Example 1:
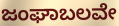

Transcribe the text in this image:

ಜಂಘಾಬಲವೇ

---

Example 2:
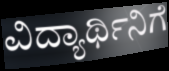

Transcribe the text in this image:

ವಿದ್ಯಾರ್ಥಿನಿಗೆ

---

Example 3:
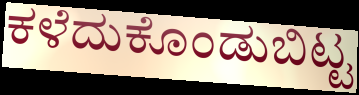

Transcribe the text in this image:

ಕಳೆದುಕೊಂಡುಬಿಟ್ಟ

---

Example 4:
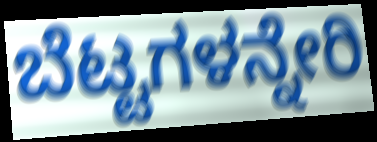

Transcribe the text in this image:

ಬೆಟ್ಟಗಳನ್ನೇರಿ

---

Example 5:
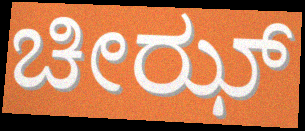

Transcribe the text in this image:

ಚೀಝ್